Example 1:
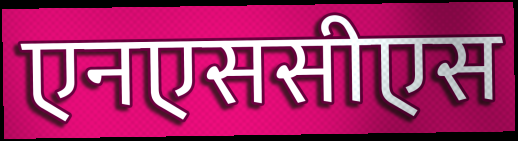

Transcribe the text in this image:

एनएससीएस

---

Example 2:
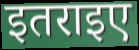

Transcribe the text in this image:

इतराइए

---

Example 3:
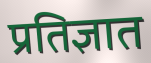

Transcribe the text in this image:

प्रतिज्ञात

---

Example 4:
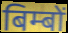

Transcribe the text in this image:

बिम्बों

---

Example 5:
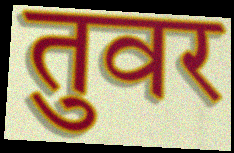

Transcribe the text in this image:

तुवर